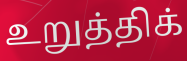
உறுத்திக்